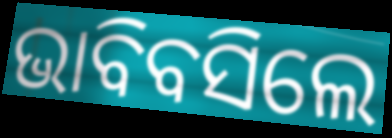
ଭାବିବସିଲେ